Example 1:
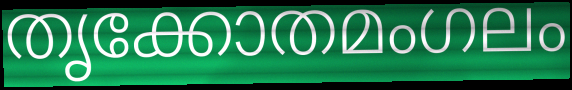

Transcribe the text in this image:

തൃക്കോതമംഗലം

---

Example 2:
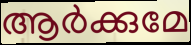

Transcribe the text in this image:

ആർക്കുമേ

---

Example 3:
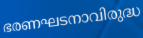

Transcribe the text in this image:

ഭരണഘടനാവിരുദ്ധ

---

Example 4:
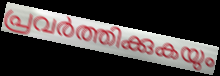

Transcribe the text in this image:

പ്രവർത്തിക്കുകയും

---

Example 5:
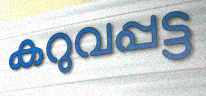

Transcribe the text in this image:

കറുവപ്പട്ട